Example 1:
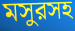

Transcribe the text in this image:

মসুরসহ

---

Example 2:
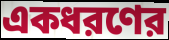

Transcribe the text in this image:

একধরণের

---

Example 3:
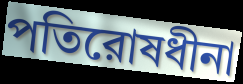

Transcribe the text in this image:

পতিরোষধীনা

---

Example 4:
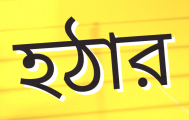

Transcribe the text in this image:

হঠার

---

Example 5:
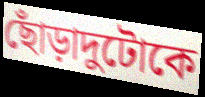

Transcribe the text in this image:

ছোঁড়াদুটোকে